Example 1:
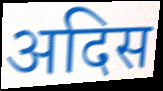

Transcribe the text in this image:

अदिस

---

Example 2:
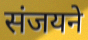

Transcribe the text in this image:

संजयने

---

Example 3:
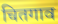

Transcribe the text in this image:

चितगाव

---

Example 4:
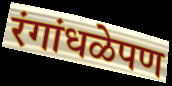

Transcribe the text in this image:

रंगांधळेपण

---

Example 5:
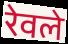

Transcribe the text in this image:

रेवले